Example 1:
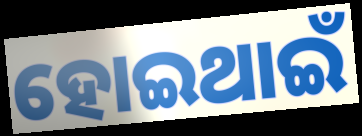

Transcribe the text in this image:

ହୋଇଥାଇଁ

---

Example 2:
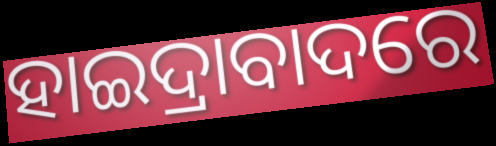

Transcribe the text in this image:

ହାଇଦ୍ରାବାଦରେ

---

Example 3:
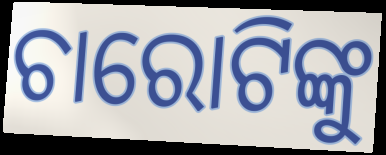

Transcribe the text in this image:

ଚାରୋଟିଙ୍କୁ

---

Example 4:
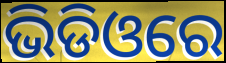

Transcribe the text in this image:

ଭିଡିଓରେ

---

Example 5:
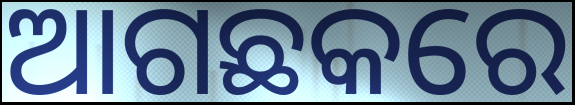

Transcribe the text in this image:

ଆଗଛକରେ